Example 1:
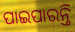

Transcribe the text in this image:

ପାଇପାରନ୍ତି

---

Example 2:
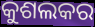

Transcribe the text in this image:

କୁଶଲକର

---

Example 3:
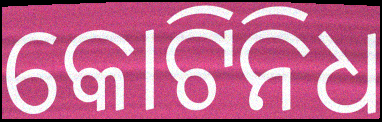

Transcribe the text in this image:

କୋଟିନିଧ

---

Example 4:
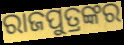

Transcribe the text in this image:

ରାଜପୁତ୍ରଙ୍କର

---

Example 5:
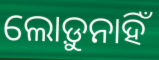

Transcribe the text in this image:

ଲୋଡ଼ୁନାହିଁ